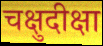
चक्षुदीक्षा